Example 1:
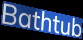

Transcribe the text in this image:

Bathtub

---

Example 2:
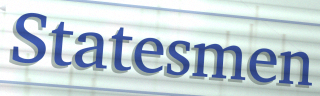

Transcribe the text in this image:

Statesmen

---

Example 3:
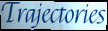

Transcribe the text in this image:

Trajectories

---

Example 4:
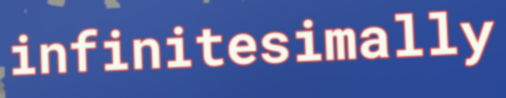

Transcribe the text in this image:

infinitesimally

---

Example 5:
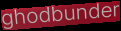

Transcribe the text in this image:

ghodbunder